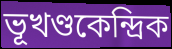
ভূখণ্ডকেন্দ্রিক